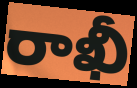
రాఖీ